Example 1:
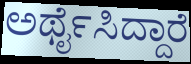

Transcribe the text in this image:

ಅರ್ಥೈಸಿದ್ದಾರೆ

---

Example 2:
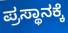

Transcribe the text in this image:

ಪ್ರಸ್ಥಾನಕ್ಕೆ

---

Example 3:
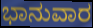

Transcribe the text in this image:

ಭಾನುವಾರ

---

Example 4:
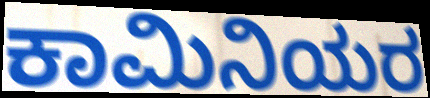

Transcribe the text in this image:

ಕಾಮಿನಿಯರ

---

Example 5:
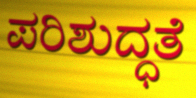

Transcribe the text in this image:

ಪರಿಶುದ್ಧತೆ